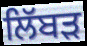
ਲਿੱਬੜ